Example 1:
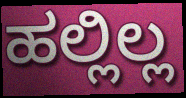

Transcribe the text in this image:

ಹಲ್ಲಿಲ್ಲ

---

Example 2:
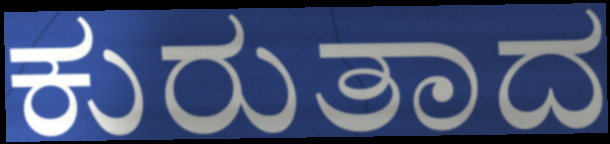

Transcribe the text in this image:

ಕುರುತಾದ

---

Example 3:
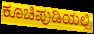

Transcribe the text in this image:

ಕೂಚಿಪುಡಿಯಲ್ಲಿ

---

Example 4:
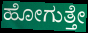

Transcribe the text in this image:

ಹೋಗುತ್ತೇ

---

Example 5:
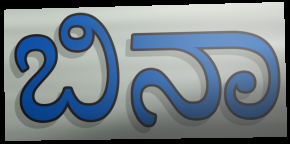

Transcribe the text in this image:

ಬಿನಾ